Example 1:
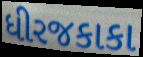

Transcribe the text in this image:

ધીરજકાકા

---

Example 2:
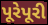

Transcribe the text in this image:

પૂરેપૂરી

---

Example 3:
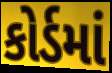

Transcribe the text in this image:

કોર્ડમાં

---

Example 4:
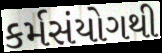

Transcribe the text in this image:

કર્મસંયોગથી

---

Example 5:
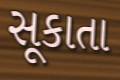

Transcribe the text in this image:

સૂકાતા